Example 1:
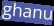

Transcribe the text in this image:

ghanu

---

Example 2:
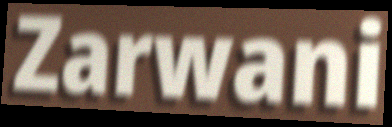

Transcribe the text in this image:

Zarwani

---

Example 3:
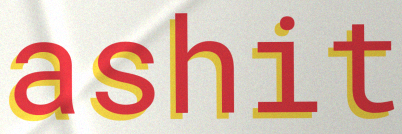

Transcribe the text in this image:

ashit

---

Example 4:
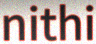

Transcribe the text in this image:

nithi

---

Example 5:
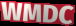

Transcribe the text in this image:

WMDC